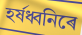
হৰ্ষধ্বনিৰে